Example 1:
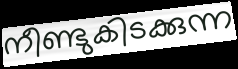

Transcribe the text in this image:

നീണ്ടുകിടക്കുന്ന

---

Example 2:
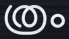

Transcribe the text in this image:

ത്രം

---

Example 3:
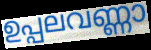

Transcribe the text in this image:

ഉപ്പലവണ്ണാ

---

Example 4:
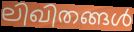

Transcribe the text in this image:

ലിഖിതങ്ങൾ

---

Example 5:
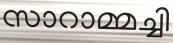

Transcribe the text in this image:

സാറാമ്മച്ചി